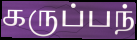
கருப்பந்